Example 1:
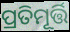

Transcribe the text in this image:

ପ୍ରତିମୂର୍ତ୍ତି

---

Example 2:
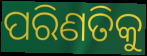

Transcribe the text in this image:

ପରିଣତିକୁ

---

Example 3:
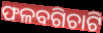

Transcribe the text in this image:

ଫଳବଗିଚାଟି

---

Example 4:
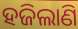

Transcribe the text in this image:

ହଜିଲାଣି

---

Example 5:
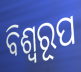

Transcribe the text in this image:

ବିଶ୍ଵରୂପ